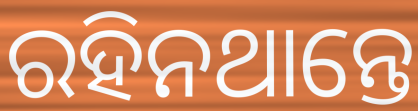
ରହିନଥାନ୍ତେ